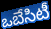
ఒబేసిటీ